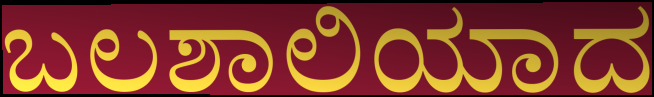
ಬಲಶಾಲಿಯಾದ